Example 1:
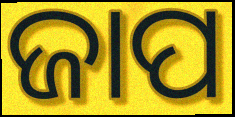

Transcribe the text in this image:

ଜାପ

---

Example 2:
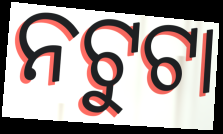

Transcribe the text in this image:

ନଟୁଟା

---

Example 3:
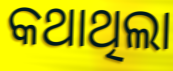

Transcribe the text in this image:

କଥାଥିଲା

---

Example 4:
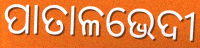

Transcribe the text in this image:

ପାତାଳଭେଦୀ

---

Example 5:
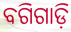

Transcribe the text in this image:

ବଗିଗାଡ଼ି